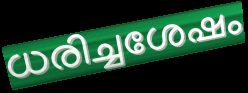
ധരിച്ചശേഷം